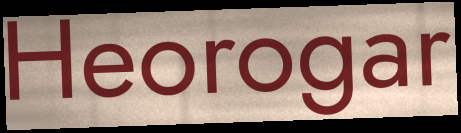
Heorogar